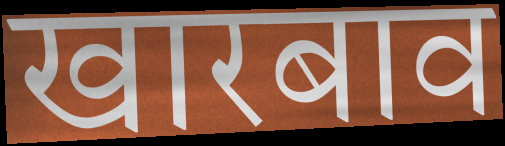
खारबाव